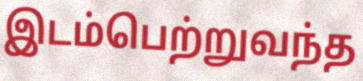
இடம்பெற்றுவந்த